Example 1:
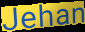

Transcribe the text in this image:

Jehan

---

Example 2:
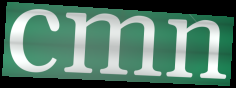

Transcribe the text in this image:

cmn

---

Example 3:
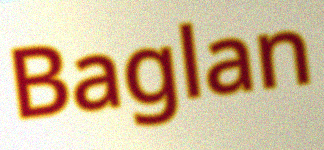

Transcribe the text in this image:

Baglan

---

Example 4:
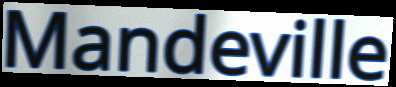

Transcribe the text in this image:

Mandeville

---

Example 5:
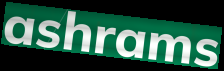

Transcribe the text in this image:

ashrams